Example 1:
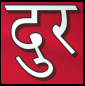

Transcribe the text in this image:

दुर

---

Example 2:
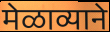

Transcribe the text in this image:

मेळाव्याने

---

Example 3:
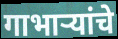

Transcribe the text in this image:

गाभाऱ्यांचे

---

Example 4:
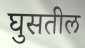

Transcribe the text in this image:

घुसतील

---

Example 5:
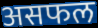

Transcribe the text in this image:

असफल